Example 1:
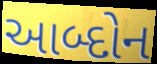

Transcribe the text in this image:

આબ્દોન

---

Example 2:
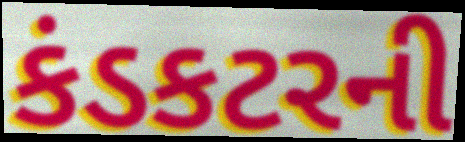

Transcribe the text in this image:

કંડકટરની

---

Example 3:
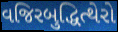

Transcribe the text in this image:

વજિરબુદ્ધિત્થેરો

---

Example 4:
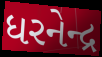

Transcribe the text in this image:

ધરનેન્દ્ર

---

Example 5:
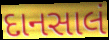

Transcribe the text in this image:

દાનસાલં